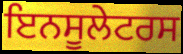
ਇਨਸੂਲੇਟਰਸ